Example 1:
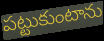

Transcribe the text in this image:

పట్టుకుంటాను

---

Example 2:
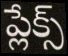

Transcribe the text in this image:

ప్లేక్స్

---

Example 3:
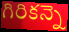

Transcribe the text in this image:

గిరికన్నె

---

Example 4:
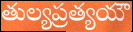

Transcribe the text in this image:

తుల్యప్రత్యయౌ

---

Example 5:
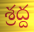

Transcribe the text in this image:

శ్రద్ద